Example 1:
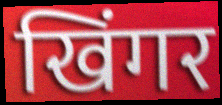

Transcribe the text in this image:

खिंगर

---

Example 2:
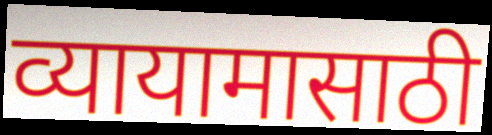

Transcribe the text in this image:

व्यायामासाठी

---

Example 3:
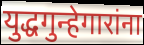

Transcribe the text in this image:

युद्धगुन्हेगारांना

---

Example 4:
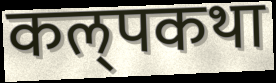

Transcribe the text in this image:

कल्पकथा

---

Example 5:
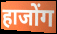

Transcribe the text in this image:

हाजोंग